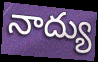
నాద్యు